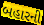
બહારની